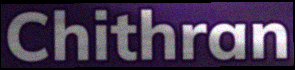
Chithran